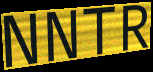
NNTR